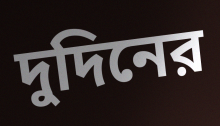
দুদিনের